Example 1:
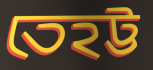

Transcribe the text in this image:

তেহট্ট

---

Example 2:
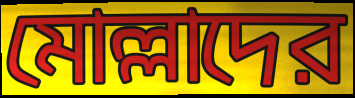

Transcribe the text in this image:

মোল্লাদের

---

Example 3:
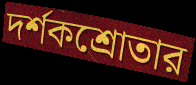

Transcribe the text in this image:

দর্শকশ্রোতার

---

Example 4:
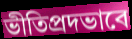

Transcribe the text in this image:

ভীতিপ্রদভাবে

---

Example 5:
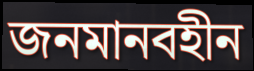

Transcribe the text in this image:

জনমানবহীন